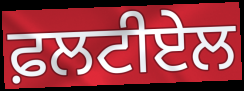
ਫ਼ਲਟੀਏਲ